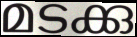
മടക്കു